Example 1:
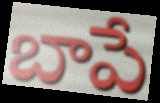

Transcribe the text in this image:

బాపే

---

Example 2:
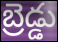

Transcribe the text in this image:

బ్రెడ్డు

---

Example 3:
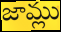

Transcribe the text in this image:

జామ్లు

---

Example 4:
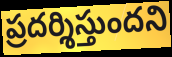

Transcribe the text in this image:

ప్రదర్శిస్తుందని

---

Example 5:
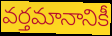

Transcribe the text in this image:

వర్తమానానికీ